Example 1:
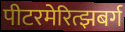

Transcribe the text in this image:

पीटरमेरित्झबर्ग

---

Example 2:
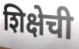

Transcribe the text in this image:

शिक्षेची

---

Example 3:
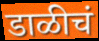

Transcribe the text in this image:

डाळीचं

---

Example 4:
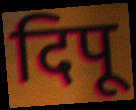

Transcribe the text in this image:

दिपू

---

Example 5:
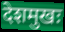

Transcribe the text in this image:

देशमुखः